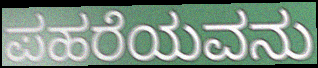
ಪಹರೆಯವನು